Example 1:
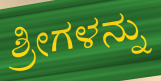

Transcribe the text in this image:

ಶ್ರೀಗಳನ್ನು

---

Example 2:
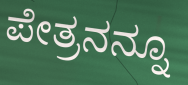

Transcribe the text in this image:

ಪೇತ್ರನನ್ನೂ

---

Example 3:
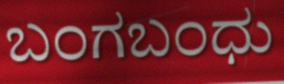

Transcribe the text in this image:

ಬಂಗಬಂಧು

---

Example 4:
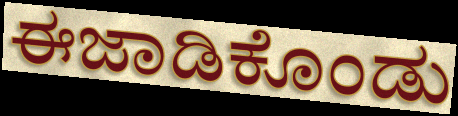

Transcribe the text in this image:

ಈಜಾಡಿಕೊಂಡು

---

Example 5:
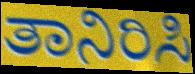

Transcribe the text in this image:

ತಾನಿರಿಸಿ